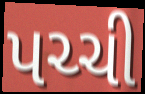
પચ્ચી